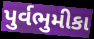
પુર્વભુમીકા